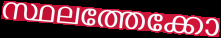
സ്ഥലത്തേക്കോ